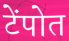
टेंपोत